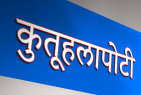
कुतूहलापोटी